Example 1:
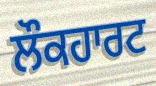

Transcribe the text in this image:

ਲੌਕਹਾਰਟ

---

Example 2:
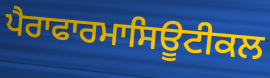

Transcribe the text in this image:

ਪੈਰਾਫਾਰਮਾਸਿਊਟੀਕਲ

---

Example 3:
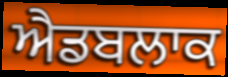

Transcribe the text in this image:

ਐਡਬਲਾਕ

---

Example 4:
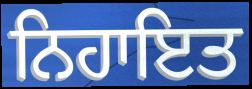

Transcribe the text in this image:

ਨਿਹਾਇਤ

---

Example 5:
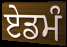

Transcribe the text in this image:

ਏਡਮੰ